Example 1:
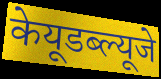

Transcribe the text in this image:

केयूडब्ल्यूजे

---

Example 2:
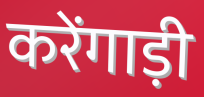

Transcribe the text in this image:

करेंगाड़ी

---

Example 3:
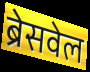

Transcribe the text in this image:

ब्रेसवेल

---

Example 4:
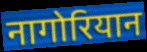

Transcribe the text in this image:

नागोरियान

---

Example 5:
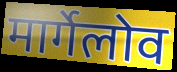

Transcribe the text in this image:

मार्गेलोव